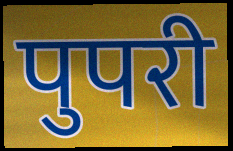
पुपरी